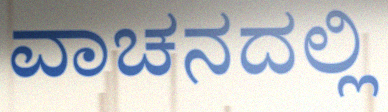
ವಾಚನದಲ್ಲಿ